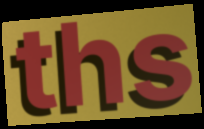
ths